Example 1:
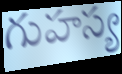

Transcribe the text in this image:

గుహస్య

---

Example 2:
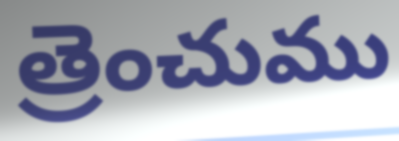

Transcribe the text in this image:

త్రెంచుము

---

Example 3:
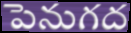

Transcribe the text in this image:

పెనుగద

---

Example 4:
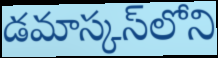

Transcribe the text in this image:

డమాస్కస్‌లోని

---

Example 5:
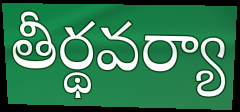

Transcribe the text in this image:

తీర్థవర్యా